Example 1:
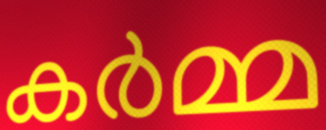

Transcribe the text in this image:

കർമ്മ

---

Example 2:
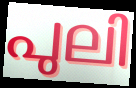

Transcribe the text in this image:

പുലി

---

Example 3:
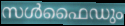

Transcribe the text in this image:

സൾഫൈഡും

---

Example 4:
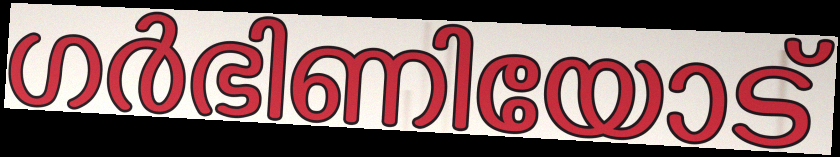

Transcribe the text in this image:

ഗർഭിണിയോട്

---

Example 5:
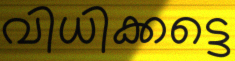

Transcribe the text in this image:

വിധിക്കട്ടെ